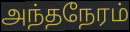
அந்தநேரம்